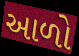
આળો